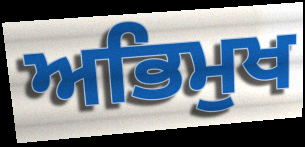
ਅਭਿਮੁਖ